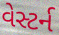
વેસ્ટર્ન